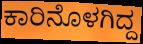
ಕಾರಿನೊಳಗಿದ್ದ